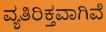
ವ್ಯತಿರಿಕ್ತವಾಗಿವೆ